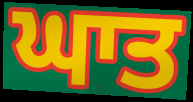
ਘਾਤ